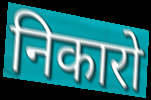
निकारो